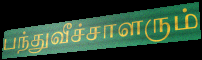
பந்துவீச்சாளரும்